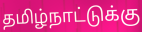
தமிழ்நாட்டுக்கு